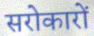
सरोकारों